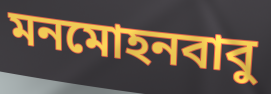
মনমোহনবাবু